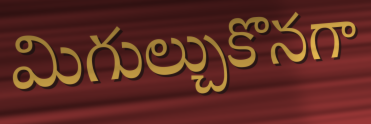
మిగుల్చుకొనగా